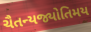
ચૈતન્યજ્યોતિમય